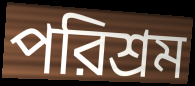
পরিশ্রম